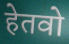
हेतवो